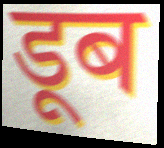
डूब